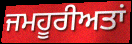
ਜਮਹੂਰੀਅਤਾਂ